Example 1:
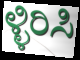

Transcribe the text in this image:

ಳ್ಳಿರಿಸಿ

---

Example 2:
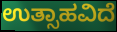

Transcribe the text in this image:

ಉತ್ಸಾಹವಿದೆ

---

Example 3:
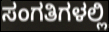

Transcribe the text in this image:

ಸಂಗತಿಗಳಲ್ಲಿ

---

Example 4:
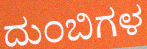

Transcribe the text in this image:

ದುಂಬಿಗಳ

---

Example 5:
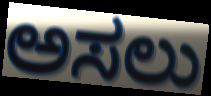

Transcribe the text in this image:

ಅಸಲು